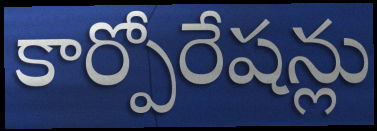
కార్పోరేషన్లు